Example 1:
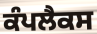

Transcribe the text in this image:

ਕੰਪਲੈਕਸ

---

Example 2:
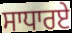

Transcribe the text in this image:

ਸਾਧਾਰਏ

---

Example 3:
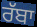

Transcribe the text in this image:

ਰੱਬਾ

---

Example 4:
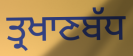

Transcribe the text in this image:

ਤ੍ਰਖਾਣਬੱਧ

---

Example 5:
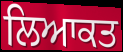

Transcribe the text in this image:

ਲਿਆਕਤ